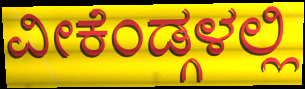
ವೀಕೆಂಡ್ಗಳಲ್ಲಿ